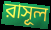
রাসূল